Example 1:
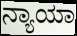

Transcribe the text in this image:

ನ್ಯಾಯಾ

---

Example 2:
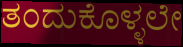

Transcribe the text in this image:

ತಂದುಕೊಳ್ಳಲೇ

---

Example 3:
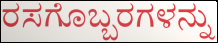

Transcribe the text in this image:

ರಸಗೊಬ್ಬರಗಳನ್ನು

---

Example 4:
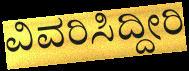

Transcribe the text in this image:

ವಿವರಿಸಿದ್ದೀರಿ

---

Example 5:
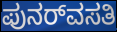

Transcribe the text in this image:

ಪುನರ್‌ವಸತಿ